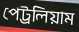
পেট্রলিয়াম